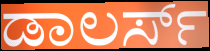
ಡಾಲರ್ಸ್